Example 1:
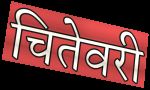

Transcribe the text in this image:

चितेवरी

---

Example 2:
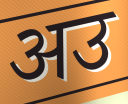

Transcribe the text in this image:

अउ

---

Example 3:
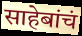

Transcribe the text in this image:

साहेबांचं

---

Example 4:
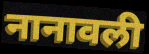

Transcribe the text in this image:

नानावली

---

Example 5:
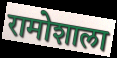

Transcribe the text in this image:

रामोशाला